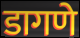
डागणे